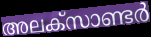
അലക്സാണ്ടർ